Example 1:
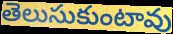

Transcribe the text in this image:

తెలుసుకుంటావు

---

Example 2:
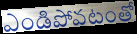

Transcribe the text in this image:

ఎండిపోవటంతో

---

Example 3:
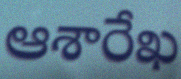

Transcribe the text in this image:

ఆశారేఖ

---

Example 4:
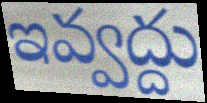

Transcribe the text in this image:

ఇవ్వద్దు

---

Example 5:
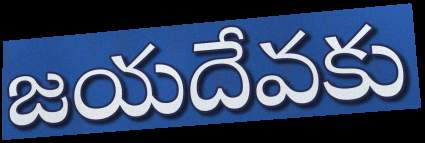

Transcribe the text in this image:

జయదేవకు